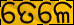
ତେଳେ